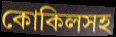
কোকিলসহ